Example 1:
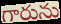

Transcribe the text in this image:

గారును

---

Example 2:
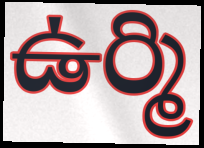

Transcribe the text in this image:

ఉర్మి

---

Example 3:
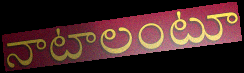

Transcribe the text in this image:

నాటాలంటూ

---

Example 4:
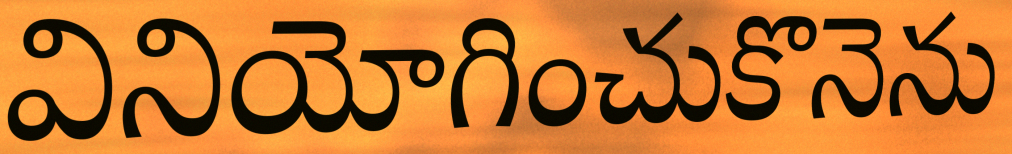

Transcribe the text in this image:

వినియోగించుకొనెను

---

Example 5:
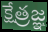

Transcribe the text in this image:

క్షేత్రజ్ఞ